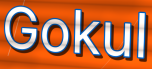
Gokul